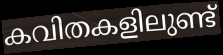
കവിതകളിലുണ്ട്